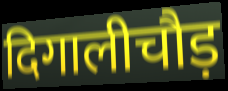
दिगालीचौड़